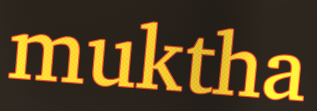
muktha